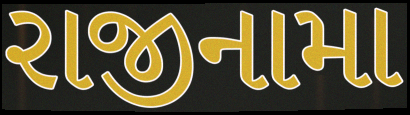
રાજીનામા